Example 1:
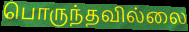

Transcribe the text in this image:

பொருந்தவில்லை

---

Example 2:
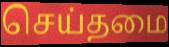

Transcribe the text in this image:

செய்தமை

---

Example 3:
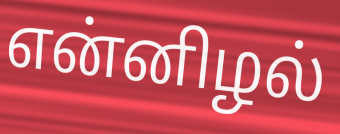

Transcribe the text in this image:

என்னிழல்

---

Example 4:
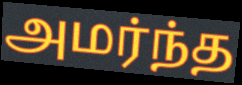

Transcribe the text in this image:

அமர்ந்த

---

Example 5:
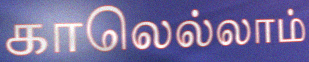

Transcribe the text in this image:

காலெல்லாம்